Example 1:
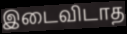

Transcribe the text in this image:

இடைவிடாத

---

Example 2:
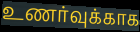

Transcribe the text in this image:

உணர்வுக்காக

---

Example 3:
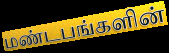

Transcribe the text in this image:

மண்டபங்களின்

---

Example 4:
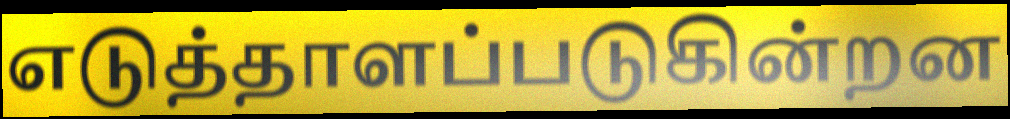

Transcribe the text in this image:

எடுத்தாளப்படுகின்றன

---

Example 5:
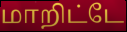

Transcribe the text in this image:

மாறிட்டே